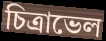
চিত্রাভেল